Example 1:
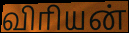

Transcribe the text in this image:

விரியன்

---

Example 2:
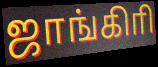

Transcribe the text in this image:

ஜாங்கிரி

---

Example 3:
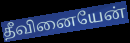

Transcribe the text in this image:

தீவினையேன்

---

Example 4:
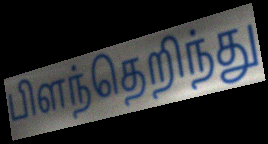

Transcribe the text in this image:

பிளந்தெறிந்து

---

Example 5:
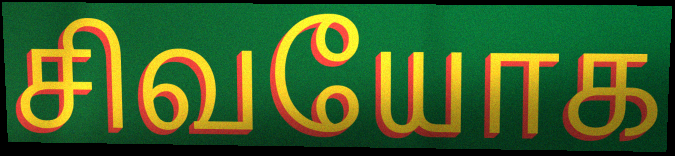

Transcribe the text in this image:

சிவயோக